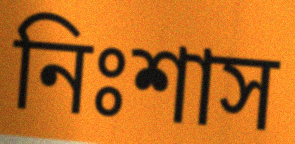
নিঃশাস